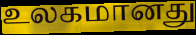
உலகமானது